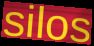
silos